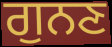
ਗੁਨਣ